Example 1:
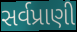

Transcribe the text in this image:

સર્વપ્રાણી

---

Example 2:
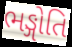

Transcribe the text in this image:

ભઙ્ગોતિ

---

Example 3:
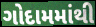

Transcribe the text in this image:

ગોદામમાંથી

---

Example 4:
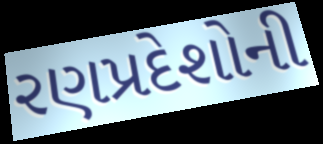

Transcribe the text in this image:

રણપ્રદેશોની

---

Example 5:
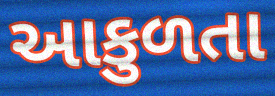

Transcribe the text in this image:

આકુળતા